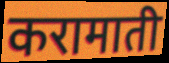
करामाती